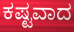
ಕಷ್ಟವಾದ